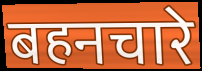
बहनचारे